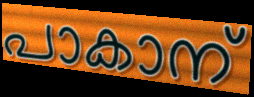
പാകാന്